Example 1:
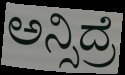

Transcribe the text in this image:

ಅನ್ಸಿದ್ರೆ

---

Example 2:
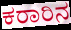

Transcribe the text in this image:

ಕರಾರಿನ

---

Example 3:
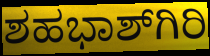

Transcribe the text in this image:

ಶಹಭಾಶ್‌ಗಿರಿ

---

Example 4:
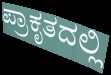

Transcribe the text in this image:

ಪ್ರಾಕೃತದಲ್ಲಿ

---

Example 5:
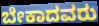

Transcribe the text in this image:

ಬೇಕಾದವರು